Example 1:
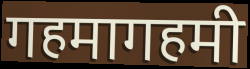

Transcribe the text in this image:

गहमागहमी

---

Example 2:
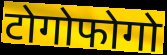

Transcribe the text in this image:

टोगोफोगो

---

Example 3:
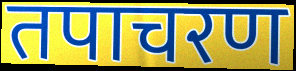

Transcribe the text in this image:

तपाचरण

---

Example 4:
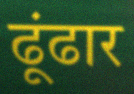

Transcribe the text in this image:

ढूंढार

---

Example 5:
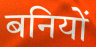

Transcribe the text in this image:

बनियों